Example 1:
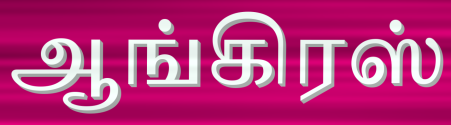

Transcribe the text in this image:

ஆங்கிரஸ்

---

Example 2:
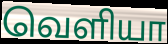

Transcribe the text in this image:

வெளியா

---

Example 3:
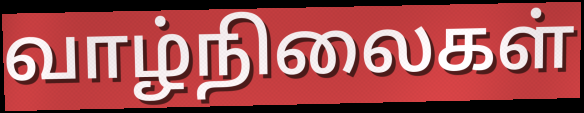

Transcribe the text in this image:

வாழ்நிலைகள்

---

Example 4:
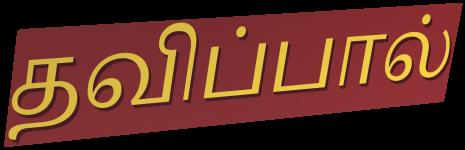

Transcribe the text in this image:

தவிப்பால்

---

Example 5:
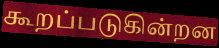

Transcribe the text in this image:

கூறப்படுகின்றன